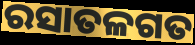
ରସାତଳଗତ